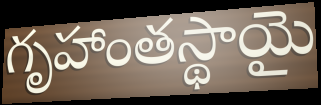
గృహాంతస్థాయై